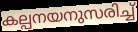
കല്പനയനുസരിച്ച്